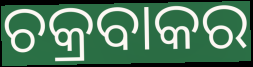
ଚକ୍ରବାକର